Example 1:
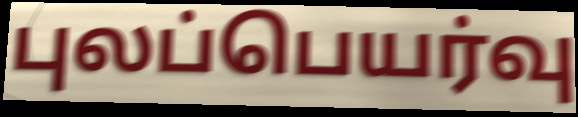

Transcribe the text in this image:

புலப்பெயர்வு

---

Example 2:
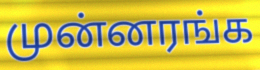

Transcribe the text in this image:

முன்னரங்க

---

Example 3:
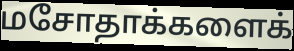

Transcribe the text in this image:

மசோதாக்களைக்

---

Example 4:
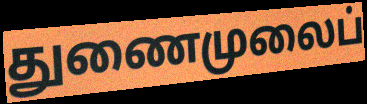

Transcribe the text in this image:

துணைமுலைப்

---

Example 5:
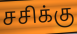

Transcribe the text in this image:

சசிக்கு